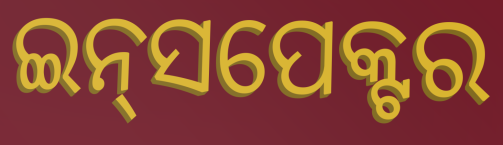
ଇନ୍‍ସପେକ୍ଟର